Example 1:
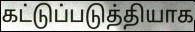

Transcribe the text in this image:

கட்டுப்படுத்தியாக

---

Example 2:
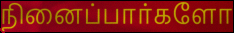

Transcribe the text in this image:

நினைப்பார்களோ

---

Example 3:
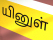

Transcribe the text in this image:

யினுள்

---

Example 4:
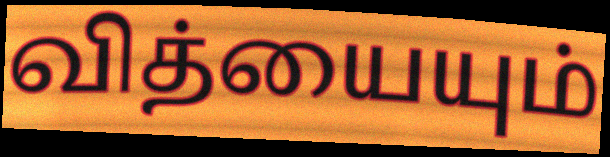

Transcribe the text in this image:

வித்யையும்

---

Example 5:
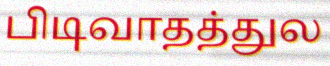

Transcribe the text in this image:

பிடிவாதத்துல